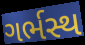
ગર્ભસ્થ